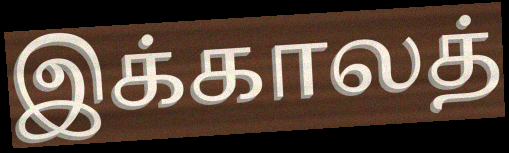
இக்காலத்